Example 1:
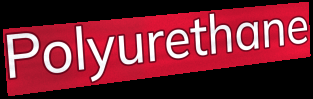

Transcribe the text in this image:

Polyurethane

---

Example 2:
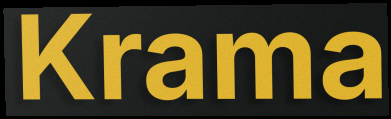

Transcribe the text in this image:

Krama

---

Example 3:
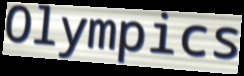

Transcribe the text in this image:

Olympics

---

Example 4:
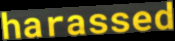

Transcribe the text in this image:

harassed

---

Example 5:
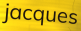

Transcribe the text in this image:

jacques